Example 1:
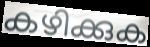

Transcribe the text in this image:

കഴിക്കുക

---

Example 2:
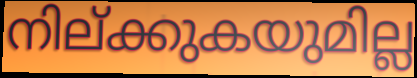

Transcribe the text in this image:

നില്ക്കുകയുമില്ല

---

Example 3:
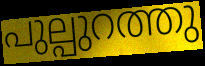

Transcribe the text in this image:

പുല്പുറത്തു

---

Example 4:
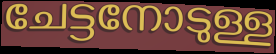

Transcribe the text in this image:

ചേട്ടനോടുള്ള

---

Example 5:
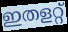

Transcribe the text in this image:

ഇതളറ്റ്